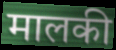
मालकी